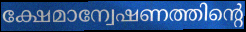
ക്ഷേമാന്വേഷണത്തിന്റെ